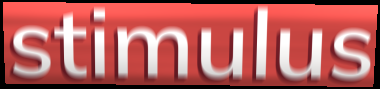
stimulus